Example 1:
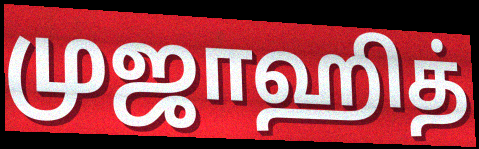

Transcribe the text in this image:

முஜாஹித்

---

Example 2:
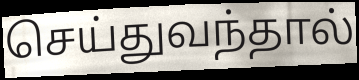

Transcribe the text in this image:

செய்துவந்தால்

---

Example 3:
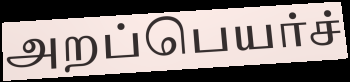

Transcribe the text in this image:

அறப்பெயர்ச்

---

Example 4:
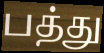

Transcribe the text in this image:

பத்து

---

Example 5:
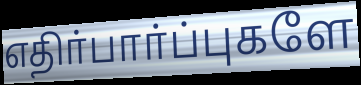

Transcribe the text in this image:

எதிர்பார்ப்புகளே